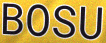
BOSU